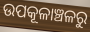
ଉପକୂଳାଞ୍ଚଳରୁ